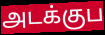
அடக்குப